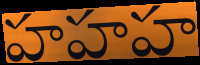
హహహ